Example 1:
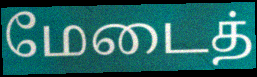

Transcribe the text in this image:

மேடைத்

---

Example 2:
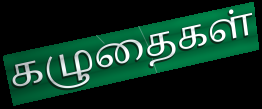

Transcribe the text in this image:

கழுதைகள்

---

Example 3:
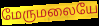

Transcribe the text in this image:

மேருமலையே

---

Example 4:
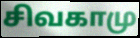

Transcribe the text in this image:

சிவகாமு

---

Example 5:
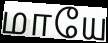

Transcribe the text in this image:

மாயே